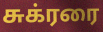
சுக்ரரை